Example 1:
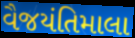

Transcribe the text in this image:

વૈજયંતિમાલા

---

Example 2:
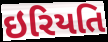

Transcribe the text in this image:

ઇરિયતિ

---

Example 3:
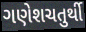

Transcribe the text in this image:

ગણેશચતુર્થી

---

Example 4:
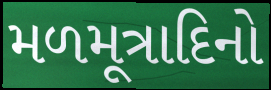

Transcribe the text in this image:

મળમૂત્રાદિનો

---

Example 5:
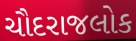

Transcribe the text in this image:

ચૌદરાજલોક